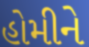
હોમીને